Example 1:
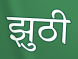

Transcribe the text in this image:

झुठी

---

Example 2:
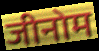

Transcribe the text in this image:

जीनोम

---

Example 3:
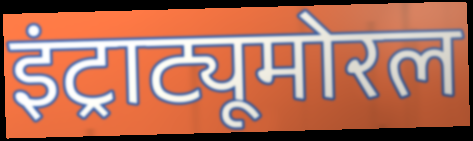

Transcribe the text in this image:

इंट्राट्यूमोरल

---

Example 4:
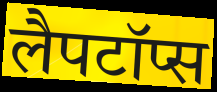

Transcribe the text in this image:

लैपटॉप्‍स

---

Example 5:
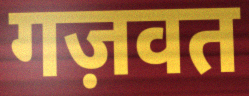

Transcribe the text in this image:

गज़वत